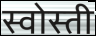
स्वोस्ती